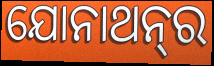
ଯୋନାଥନ୍‍ର